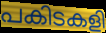
പകിടകളി